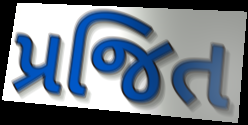
પ્રજિત